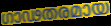
ഗാഢതരമായ